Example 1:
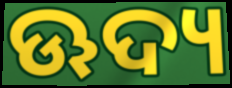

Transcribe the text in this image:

ଊଦ୍ୟ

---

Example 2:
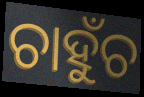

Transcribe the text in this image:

ଚାହୁଁଚ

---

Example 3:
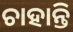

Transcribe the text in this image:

ଚାହାନ୍ତି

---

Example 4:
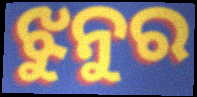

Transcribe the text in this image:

ଝୁନୁର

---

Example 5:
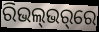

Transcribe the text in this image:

ରିଭଲ୍‌ଭର୍‌ରେ